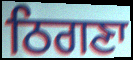
ਠਿਗਣਾ